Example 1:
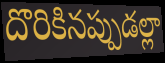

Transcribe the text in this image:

దొరికినప్పుడల్లా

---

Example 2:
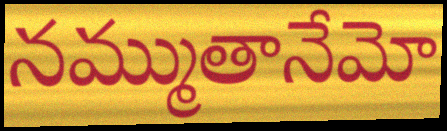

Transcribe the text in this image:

నమ్ముతానేమో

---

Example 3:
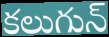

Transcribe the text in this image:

కలుగున్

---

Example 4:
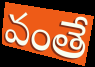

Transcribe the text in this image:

వంతే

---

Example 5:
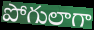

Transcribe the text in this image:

పోగులాగా